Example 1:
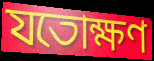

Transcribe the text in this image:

যতোক্ষণ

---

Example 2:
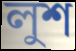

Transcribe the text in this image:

লুশ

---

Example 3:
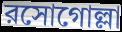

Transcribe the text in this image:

রসোগোল্লা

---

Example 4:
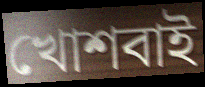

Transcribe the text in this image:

খোশবাই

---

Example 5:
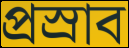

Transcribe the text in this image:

প্রস্রাব